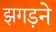
झगड़ने